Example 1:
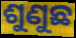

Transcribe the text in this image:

ଶୁଣୁଛ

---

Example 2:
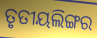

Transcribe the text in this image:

ତୃତୀୟଲିଙ୍ଗର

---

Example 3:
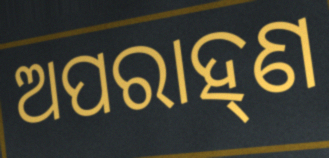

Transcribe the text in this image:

ଅପରାହ୍‍ଣ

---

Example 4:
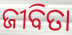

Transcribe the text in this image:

ଜୀବିତା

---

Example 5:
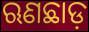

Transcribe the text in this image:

ଋଣଛାଡ଼